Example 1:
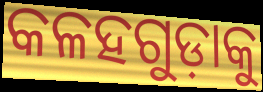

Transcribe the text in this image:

କଳହଗୁଡ଼ାକୁ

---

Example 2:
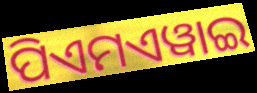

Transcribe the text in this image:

ପିଏମଏୱାଇ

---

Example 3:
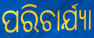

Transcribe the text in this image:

ପରିଚାର୍ଯ୍ୟା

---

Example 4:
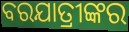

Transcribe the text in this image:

ବରଯାତ୍ରୀଙ୍କର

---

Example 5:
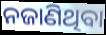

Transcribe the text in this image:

ନଜାଣିଥିବା